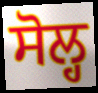
ਸੋਲ੍ਹ